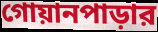
গোয়ানপাড়ার